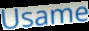
Usame